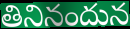
తినినందున